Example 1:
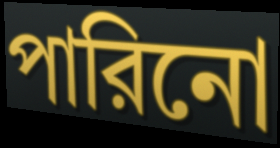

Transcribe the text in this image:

পারিনো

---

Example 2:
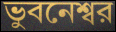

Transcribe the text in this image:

ভুবনেশ্বর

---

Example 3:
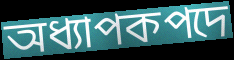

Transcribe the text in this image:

অধ্যাপকপদে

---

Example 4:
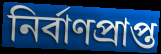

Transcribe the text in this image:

নির্বাণপ্রাপ্ত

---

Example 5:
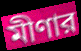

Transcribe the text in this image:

মীণার